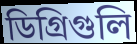
ডিগ্রিগুলি